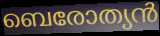
ബെരോത്യൻ